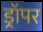
ड्रॉपर